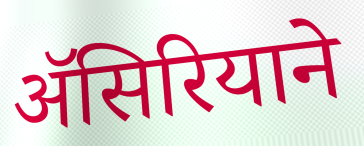
ॲसिरियाने